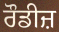
ਰੌਡੀਜ਼